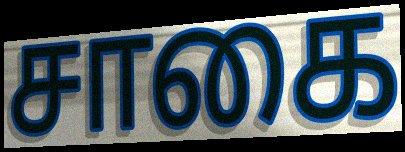
சாகை